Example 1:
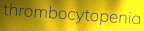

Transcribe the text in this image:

thrombocytopenia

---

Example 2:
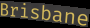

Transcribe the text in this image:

Brisbane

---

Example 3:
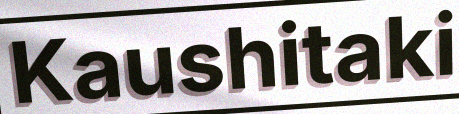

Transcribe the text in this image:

Kaushitaki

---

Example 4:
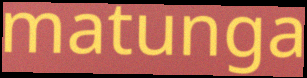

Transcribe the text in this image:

matunga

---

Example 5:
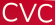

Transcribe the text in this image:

CVC